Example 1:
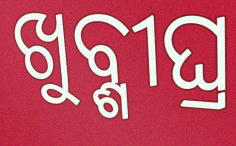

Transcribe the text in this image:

ଖୁବ୍ଶୀଘ୍ର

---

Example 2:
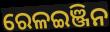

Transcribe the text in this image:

ରେଳଇଞ୍ଜିନ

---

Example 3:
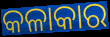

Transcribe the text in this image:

କଳାକାର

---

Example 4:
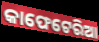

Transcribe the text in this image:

କାଫେଟେରିଆ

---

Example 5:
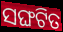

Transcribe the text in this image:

ସଙ୍ଘଟିତ